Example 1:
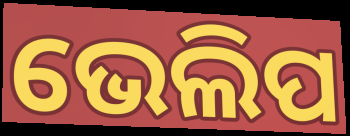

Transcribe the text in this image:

ଭେଲିପ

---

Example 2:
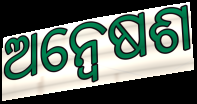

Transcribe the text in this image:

ଅନ୍ୱେଷଶ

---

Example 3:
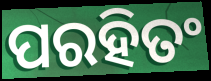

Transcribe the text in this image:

ପରହିତଂ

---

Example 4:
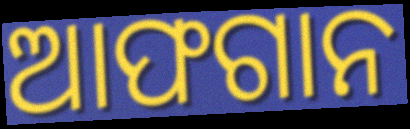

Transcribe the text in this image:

ଆଫଗାନ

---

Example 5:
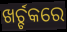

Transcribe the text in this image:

ଖର୍ଚ୍ଚକରେ